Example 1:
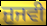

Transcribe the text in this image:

ਜੁਜਵੀ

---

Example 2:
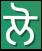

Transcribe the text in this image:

ਲੋ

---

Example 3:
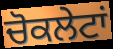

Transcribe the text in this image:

ਚੋਕਲੇਟਾਂ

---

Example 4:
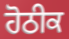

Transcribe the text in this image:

ਹੋਠੀਕ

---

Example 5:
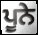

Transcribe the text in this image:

ਪੂਨੇ